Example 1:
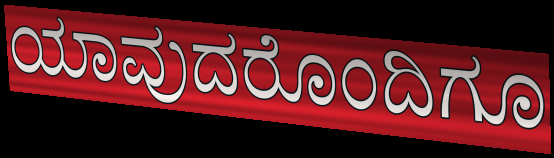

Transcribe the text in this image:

ಯಾವುದರೊಂದಿಗೂ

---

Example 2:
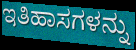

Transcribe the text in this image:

ಇತಿಹಾಸಗಳನ್ನು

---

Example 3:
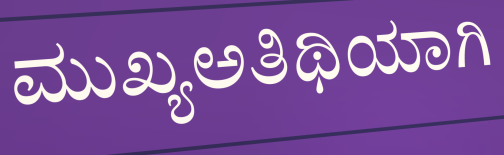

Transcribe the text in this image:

ಮುಖ್ಯಅತಿಥಿಯಾಗಿ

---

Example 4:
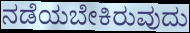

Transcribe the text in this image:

ನಡೆಯಬೇಕಿರುವುದು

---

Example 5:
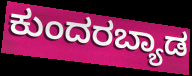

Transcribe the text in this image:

ಕುಂದರಬ್ಯಾಡ